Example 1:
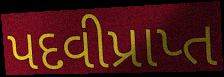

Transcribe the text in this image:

પદવીપ્રાપ્ત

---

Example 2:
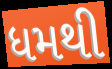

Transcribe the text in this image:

ધમથી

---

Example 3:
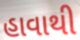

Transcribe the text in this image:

હાવાથી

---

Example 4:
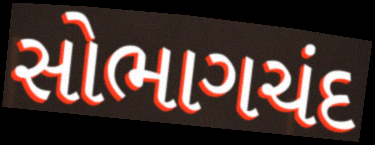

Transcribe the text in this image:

સોભાગચંદ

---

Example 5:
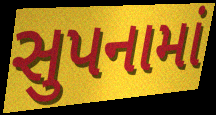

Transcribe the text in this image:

સુપનામાં